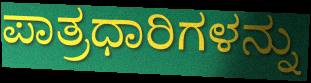
ಪಾತ್ರಧಾರಿಗಳನ್ನು